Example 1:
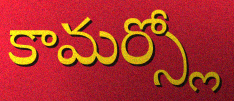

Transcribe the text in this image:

కామర్స్లో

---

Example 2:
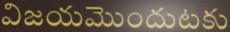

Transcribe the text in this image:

విజయమొందుటకు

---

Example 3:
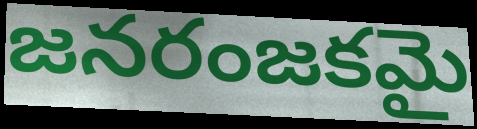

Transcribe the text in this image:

జనరంజకమై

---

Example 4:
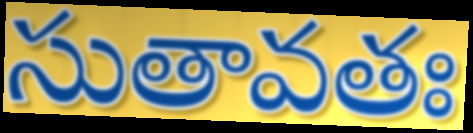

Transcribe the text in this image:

సుతావతః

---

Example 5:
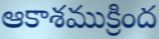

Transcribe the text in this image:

ఆకాశముక్రింద